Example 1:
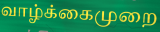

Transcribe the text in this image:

வாழ்க்கைமுறை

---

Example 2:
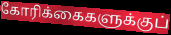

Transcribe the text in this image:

கோரிக்கைகளுக்குப்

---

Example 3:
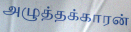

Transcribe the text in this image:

அழுத்தக்காரன்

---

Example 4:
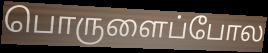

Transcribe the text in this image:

பொருளைப்போல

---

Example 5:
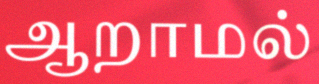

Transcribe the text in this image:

ஆறாமல்